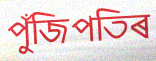
পুঁজিপতিৰ